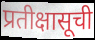
प्रतीक्षासूची